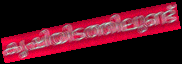
കൃഷിയിടത്തിലുണ്ട്